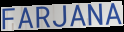
FARJANA